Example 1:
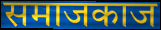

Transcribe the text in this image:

समाजकाज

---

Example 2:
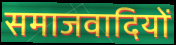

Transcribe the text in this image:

समाजवादियों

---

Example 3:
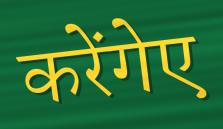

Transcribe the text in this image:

करेंगेए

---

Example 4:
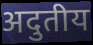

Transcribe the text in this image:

अदुतीय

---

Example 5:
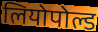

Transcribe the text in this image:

लियोपोल्ड